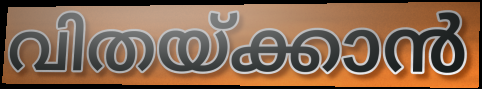
വിതയ്ക്കാൻ